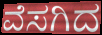
ವೆಸಗಿದ